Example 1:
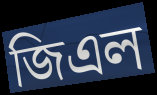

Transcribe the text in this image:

জিএল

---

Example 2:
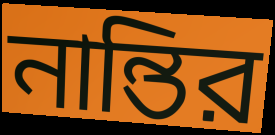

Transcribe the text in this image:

নান্তির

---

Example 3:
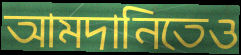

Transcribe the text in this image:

আমদানিতেও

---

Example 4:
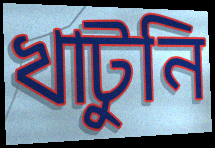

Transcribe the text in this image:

খাটুনি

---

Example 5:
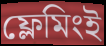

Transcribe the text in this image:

ফ্লেমিংই